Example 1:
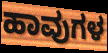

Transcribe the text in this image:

ಹಾವುಗಳ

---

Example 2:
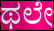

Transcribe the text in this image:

ಥಲೇ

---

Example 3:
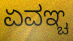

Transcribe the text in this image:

ಏವಞ್ಚ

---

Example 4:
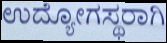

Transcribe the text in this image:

ಉದ್ಯೋಗಸ್ಥರಾಗಿ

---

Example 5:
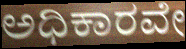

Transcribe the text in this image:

ಅಧಿಕಾರವೇ